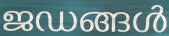
ജഡങ്ങൾ